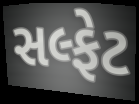
સલ્ફેટ